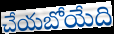
చేయబోయేది